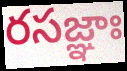
రసజ్ఞాః